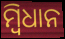
ମ୍ବିଧାନ